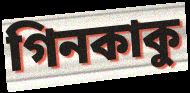
গিনকাকু